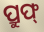
ପ୍ରୁଫ୍